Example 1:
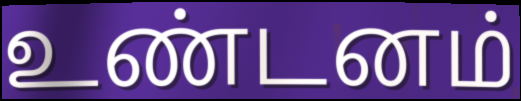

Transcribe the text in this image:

உண்டனம்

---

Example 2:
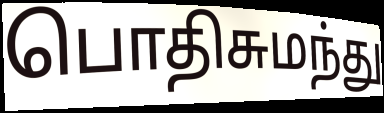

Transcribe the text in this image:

பொதிசுமந்து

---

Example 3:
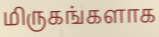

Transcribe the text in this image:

மிருகங்களாக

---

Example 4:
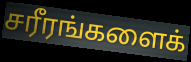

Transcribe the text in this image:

சரீரங்களைக்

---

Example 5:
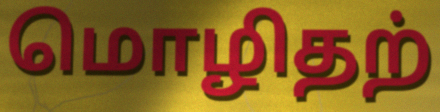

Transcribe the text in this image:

மொழிதற்